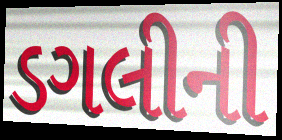
ડગલીની